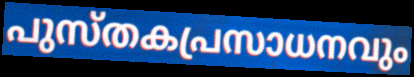
പുസ്തകപ്രസാധനവും